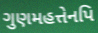
ગુણમહત્તેનપિ